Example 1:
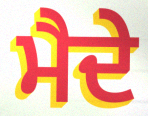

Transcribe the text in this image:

ਮੈਦੇ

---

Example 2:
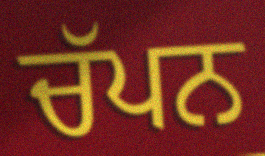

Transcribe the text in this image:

ਚੱਪਨ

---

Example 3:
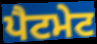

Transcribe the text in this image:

ਪੈਟਮੇਟ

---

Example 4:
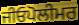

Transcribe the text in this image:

ਜੀਓਪੋਲੀਮਰ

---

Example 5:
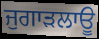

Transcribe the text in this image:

ਜੁਗਾੜਲਾਊ